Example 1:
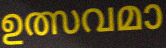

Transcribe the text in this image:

ഉത്സവമാ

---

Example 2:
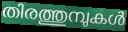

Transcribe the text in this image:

തിരത്തുമ്പുകൾ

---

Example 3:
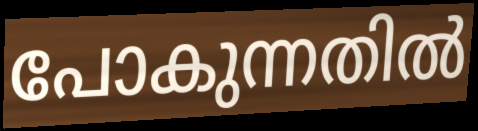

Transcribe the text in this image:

പോകുന്നതിൽ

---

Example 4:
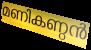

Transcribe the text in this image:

മണികണ്ഠൻ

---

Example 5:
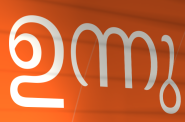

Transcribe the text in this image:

ഉന്നു